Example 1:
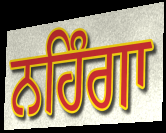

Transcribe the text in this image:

ਨਹਿੰਗਾ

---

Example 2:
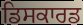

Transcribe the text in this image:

ਡਿਸਕਾਰਡ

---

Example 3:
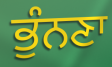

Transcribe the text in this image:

ਭੁੰਨਣਾ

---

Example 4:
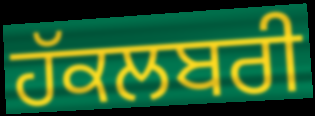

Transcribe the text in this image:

ਹੱਕਲਬਰੀ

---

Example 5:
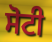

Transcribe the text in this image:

ਸੋਟੀ